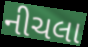
નીચલા